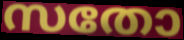
സതോ